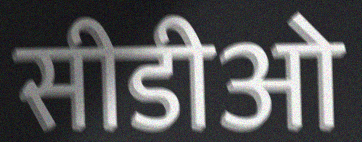
सीडीओ